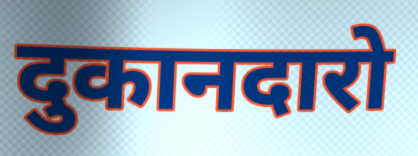
दुकानदारो